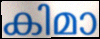
കിമാ